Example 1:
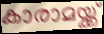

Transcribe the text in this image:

കാരാമയ്ക്ക്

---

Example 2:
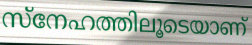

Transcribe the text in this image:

സ്നേഹത്തിലൂടെയാണ്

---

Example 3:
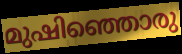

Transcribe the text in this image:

മുഷിഞ്ഞൊരു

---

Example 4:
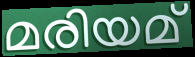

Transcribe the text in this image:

മരിയമ്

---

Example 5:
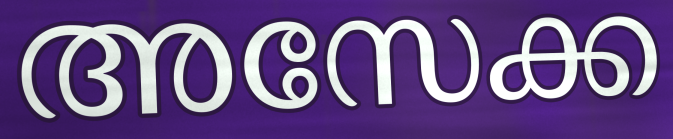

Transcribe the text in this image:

അസേക്ക